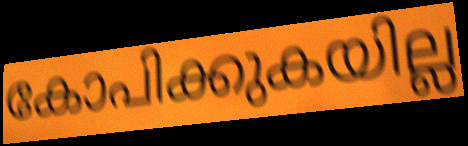
കോപിക്കുകയില്ല